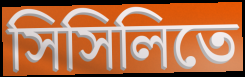
সিসিলিতে